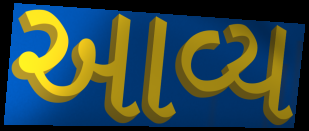
આવ્ય